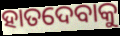
ହାତଦେବାକୁ